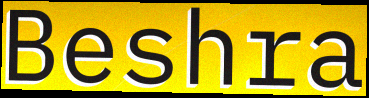
Beshra